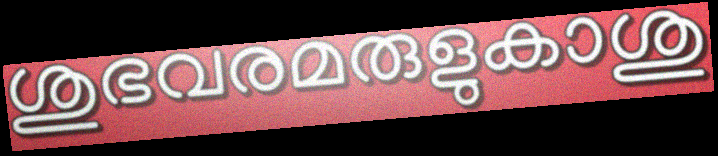
ശുഭവരമരുളുകാശു